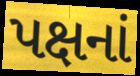
પક્ષનાં